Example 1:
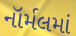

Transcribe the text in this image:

નૉર્મલમાં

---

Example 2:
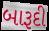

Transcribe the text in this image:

બારૂદી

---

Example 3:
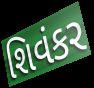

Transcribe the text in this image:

શિવંકર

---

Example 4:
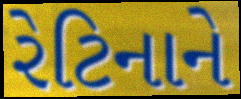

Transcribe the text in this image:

રેટિનાને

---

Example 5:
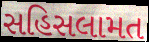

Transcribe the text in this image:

સહિસલામત